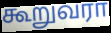
கூறுவரா